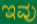
ಇವು